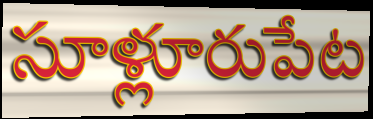
సూళ్లూరుపేట